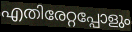
എതിരേറ്റപ്പോളും